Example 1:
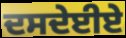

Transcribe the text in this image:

ਦਸਦੇਈਏ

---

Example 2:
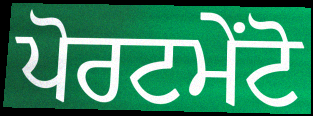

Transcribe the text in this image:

ਪੋਰਟਮੇਂਟੋ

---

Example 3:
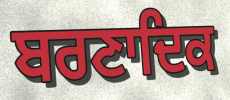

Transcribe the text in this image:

ਬਰਣਾਦਿਕ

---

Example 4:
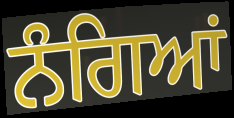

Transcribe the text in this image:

ਨੰਗਿਆਂ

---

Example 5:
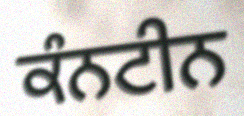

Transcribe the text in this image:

ਕੰਨਟੀਨ